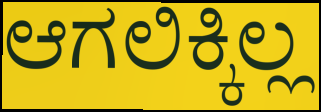
ಆಗಲಿಕ್ಕಿಲ್ಲ